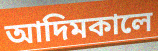
আদিমকালে